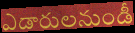
ఎడారులనుండీ